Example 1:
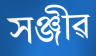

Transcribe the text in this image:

সঞ্জীৱ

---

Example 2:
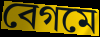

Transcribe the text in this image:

বেগমে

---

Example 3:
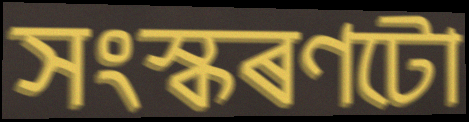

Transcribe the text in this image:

সংস্কৰণটো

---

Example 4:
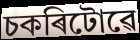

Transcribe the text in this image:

চকৰিটোৱে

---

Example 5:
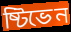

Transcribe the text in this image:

ষ্টিভেন